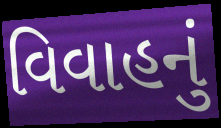
વિવાહનું